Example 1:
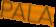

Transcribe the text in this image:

PALA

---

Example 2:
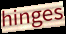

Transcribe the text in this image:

hinges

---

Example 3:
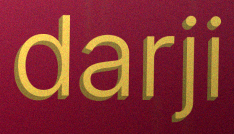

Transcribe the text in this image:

darji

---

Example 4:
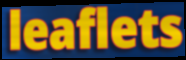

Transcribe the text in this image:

leaflets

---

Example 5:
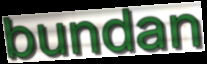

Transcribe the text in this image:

bundan